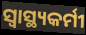
ସ୍ୱାସ୍ଥ୍ୟକର୍ମୀ